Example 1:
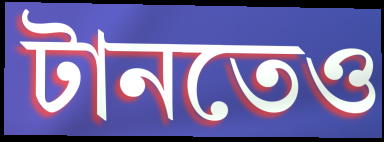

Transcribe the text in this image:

টানতেও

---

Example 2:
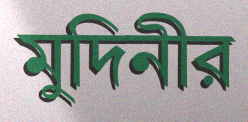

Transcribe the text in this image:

মুদিনীর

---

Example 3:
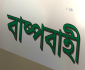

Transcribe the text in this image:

বাষ্পবাহী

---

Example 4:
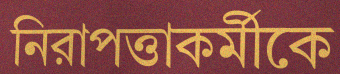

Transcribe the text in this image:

নিরাপত্তাকর্মীকে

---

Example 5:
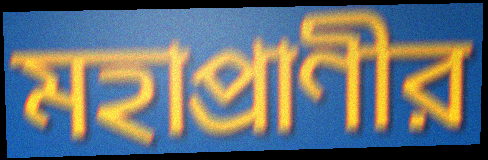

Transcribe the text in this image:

মহাপ্রাণীর